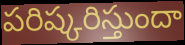
పరిష్కరిస్తుందా